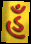
હઁ